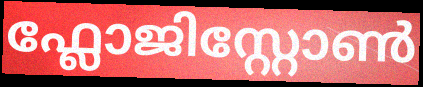
ഫ്ലോജിസ്റ്റോൺ